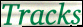
Tracks